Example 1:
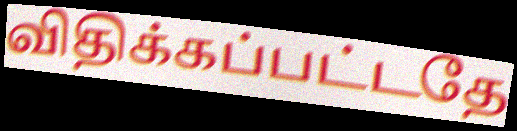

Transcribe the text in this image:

விதிக்கப்பட்டதே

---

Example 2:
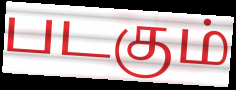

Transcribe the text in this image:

படகும்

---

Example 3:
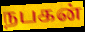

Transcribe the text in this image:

நபகன்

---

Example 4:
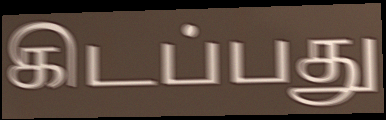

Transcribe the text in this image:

கிடப்பது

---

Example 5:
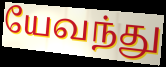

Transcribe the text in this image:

யேவந்து